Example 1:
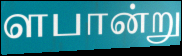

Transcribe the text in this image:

ளபான்று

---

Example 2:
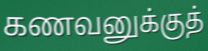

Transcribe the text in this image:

கணவனுக்குத்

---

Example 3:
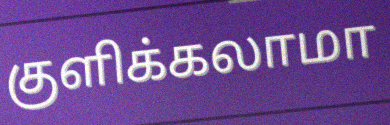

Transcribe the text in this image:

குளிக்கலாமா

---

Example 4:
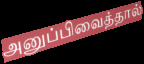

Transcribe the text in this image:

அனுப்பிவைத்தால்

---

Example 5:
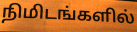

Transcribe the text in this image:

நிமிடங்களில்